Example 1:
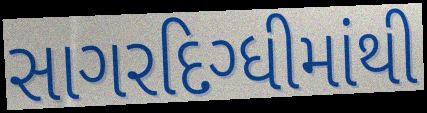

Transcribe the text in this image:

સાગરદિગ્ધીમાંથી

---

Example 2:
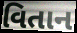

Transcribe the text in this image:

વિતાન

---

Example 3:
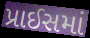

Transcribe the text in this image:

પ્રાઈસમાં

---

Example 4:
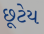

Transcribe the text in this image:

છૂટેય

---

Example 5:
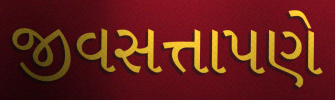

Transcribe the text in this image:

જીવસત્તાપણે